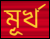
মূৰ্খ